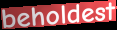
beholdest